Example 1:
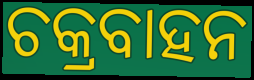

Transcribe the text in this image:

ଚକ୍ରବାହନ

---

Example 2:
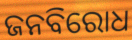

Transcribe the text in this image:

ଜନବିରୋଧ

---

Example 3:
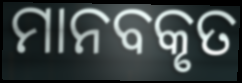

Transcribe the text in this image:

ମାନବକୃତ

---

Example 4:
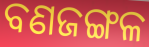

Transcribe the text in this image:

ବଣଜଙ୍ଗଳ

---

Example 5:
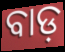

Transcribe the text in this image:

ବାଡ଼